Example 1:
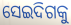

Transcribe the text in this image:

ସେଇଦିଗକୁ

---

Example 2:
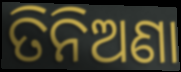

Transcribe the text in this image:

ତିନିଅଣା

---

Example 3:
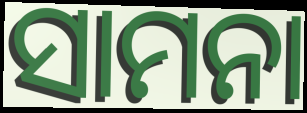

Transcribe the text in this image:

ସାମନା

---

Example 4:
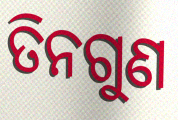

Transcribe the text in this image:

ତିନଗୁଣ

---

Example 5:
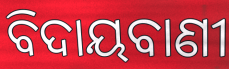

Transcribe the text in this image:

ବିଦାୟବାଣୀ